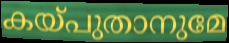
കയ്പുതാനുമേ